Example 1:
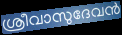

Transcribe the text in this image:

ശ്രീവാസുദേവൻ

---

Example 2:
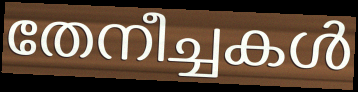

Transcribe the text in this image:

തേനീച്ചകൾ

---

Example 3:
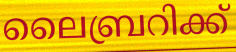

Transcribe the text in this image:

ലൈബ്രറിക്ക്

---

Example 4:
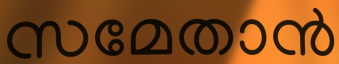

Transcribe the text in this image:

സമേതാൻ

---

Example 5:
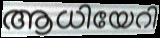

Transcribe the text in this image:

ആധിയേറി